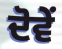
ਦੋਵੇਂ